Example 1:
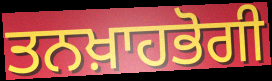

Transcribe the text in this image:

ਤਨਖ਼ਾਹਭੋਗੀ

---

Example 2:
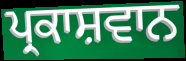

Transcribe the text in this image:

ਪ੍ਰਕਾਸ਼ਵਾਨ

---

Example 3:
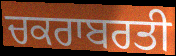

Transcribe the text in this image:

ਚਕਰਾਬਰਤੀ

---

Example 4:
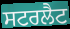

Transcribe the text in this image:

ਸਟਰਲੈਟ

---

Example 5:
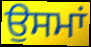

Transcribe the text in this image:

ਉਸਮਾਂ